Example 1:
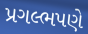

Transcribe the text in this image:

પ્રગલ્ભપણે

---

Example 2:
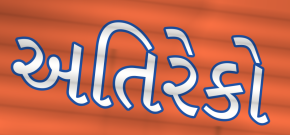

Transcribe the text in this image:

અતિરેકો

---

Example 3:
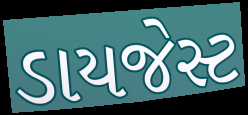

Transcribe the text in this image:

ડાયજેસ્ટ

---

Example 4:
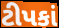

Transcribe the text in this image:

ટીપકાં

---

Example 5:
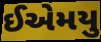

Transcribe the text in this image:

ઈએમયુ